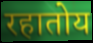
रहातोय